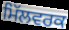
ਮਿੱਲਵਰਕ